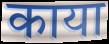
काया